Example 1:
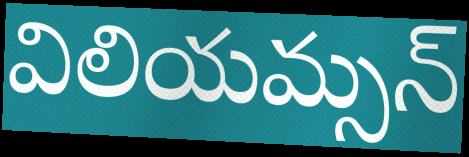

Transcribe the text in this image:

విలియమ్సన్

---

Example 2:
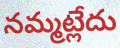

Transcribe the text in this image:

నమ్మట్లేదు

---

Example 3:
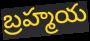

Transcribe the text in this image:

బ్రహ్మయ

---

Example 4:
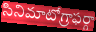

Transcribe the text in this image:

సినిమాటోగ్రాఫర్గా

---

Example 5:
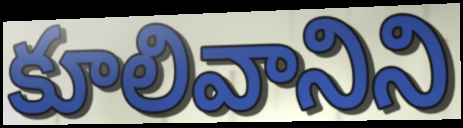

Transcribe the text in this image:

కూలివానిని